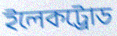
ইলেকট্রোড